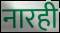
नारही